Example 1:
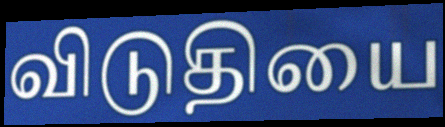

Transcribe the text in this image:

விடுதியை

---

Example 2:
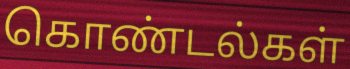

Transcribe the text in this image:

கொண்டல்கள்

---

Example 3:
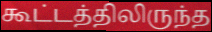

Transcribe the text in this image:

கூட்டத்திலிருந்த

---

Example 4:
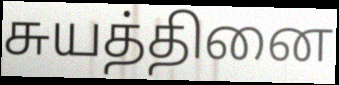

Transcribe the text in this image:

சுயத்தினை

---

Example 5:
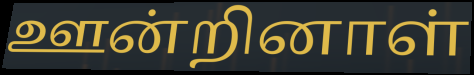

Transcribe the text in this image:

ஊன்றினாள்